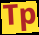
Tp